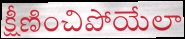
క్షీణించిపోయేలా